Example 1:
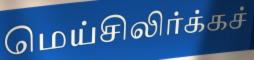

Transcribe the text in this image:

மெய்சிலிர்க்கச்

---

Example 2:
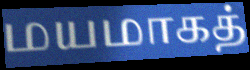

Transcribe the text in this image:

மயமாகத்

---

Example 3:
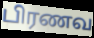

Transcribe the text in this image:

பிரணவ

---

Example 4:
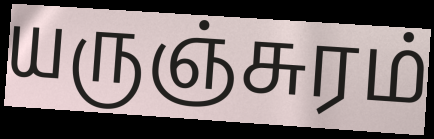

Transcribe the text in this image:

யருஞ்சுரம்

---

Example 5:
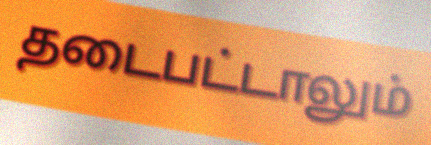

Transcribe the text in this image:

தடைபட்டாலும்